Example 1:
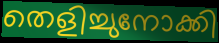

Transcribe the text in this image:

തെളിച്ചുനോക്കി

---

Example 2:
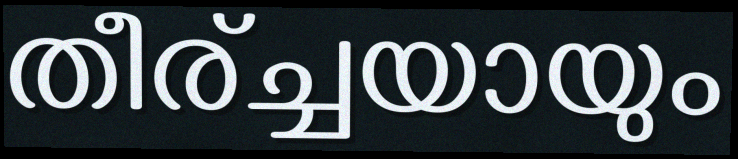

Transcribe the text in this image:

തീര്ച്ചയായും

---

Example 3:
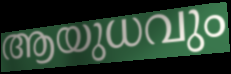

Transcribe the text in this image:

ആയുധവും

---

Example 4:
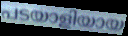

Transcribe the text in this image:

പടയാളിയായ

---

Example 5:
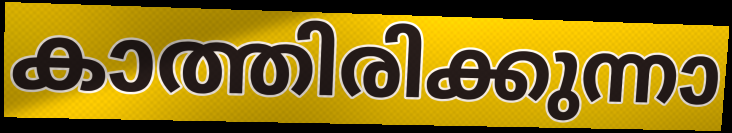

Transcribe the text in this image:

കാത്തിരിക്കുന്നാ